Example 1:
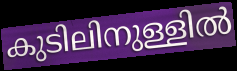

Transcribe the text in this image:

കുടിലിനുള്ളിൽ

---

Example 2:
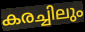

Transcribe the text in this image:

കരച്ചിലും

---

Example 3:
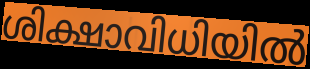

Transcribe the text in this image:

ശിക്ഷാവിധിയിൽ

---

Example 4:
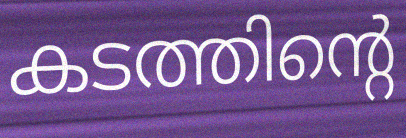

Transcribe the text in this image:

കടത്തിന്റെ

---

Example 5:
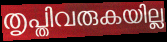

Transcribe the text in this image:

തൃപ്തിവരുകയില്ല